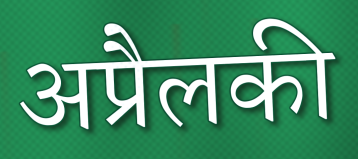
अप्रैलकी